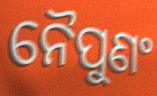
ନୈପୁଣଂ